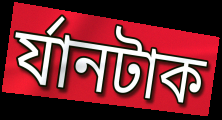
র্যানটাক